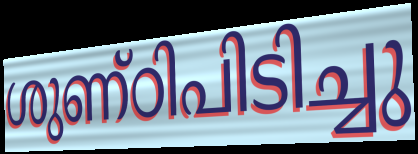
ശുണ്ഠിപിടിച്ചു